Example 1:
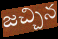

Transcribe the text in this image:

జచ్చిన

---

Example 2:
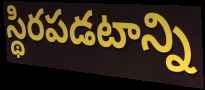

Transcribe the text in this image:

స్థిరపడటాన్ని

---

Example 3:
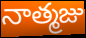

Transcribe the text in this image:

నాత్మజు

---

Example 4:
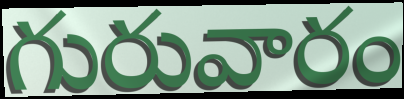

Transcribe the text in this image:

గురువారం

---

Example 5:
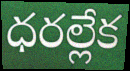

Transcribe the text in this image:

ధరల్లేక